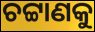
ଚଟ୍ଟାଣକୁ